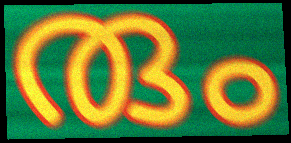
രും